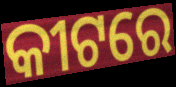
କୀଟରେ